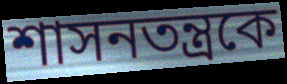
শাসনতন্ত্রকে